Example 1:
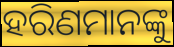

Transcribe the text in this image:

ହରିଣମାନଙ୍କୁ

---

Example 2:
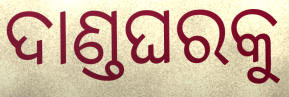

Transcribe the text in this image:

ଦାଣ୍ଡଘରକୁ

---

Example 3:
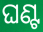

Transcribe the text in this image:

ଘଣ୍ଟ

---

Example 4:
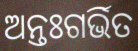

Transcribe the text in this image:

ଅନ୍ତଃଗର୍ଭିତ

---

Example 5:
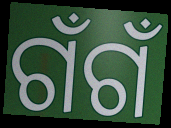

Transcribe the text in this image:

ଗଁଗଁ